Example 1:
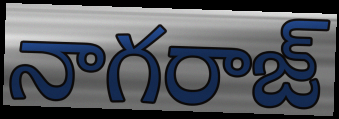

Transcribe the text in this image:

నాగరాజ్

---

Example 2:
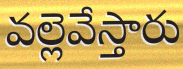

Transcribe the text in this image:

వల్లెవేస్తారు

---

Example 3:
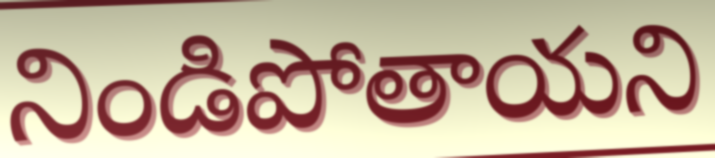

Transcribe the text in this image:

నిండిపోతాయని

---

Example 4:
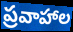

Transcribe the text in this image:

ప్రవాహాల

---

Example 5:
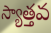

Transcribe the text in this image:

స్యాత్తవ